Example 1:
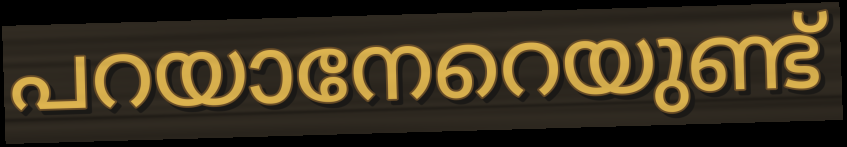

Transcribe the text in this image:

പറയാനേറെയുണ്ട്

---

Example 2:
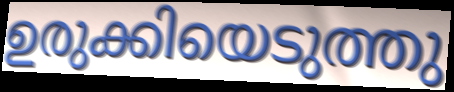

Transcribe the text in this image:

ഉരുക്കിയെടുത്തു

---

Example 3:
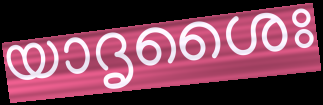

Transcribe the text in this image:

യാദൃശൈഃ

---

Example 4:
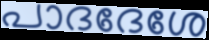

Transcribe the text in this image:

പാദദേശേ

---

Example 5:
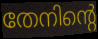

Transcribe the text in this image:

തേനിന്റെ